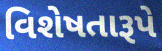
વિશેષતારૂપે